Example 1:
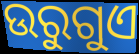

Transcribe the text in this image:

ଉରୁଗୁଏ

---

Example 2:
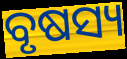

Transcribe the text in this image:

ବୃଷସ୍ୟ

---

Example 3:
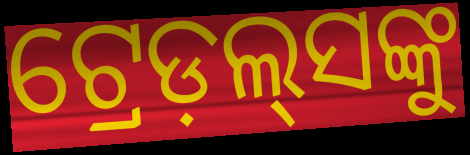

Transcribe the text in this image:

ଟ୍ରେଡ଼ଲ୍‍ସଙ୍କୁ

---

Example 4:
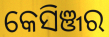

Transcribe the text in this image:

କେସିଞ୍ଜର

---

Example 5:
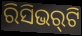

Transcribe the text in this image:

ରିସିଭର୍‌ଟି